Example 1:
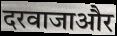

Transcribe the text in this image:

दरवाजाऔर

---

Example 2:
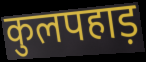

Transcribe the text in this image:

कुलपहाड़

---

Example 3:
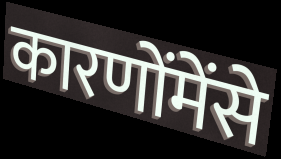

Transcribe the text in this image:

कारणोंमेंसे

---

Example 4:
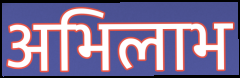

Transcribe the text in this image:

अभिलाभ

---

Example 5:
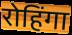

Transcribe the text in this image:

रोहिंगा